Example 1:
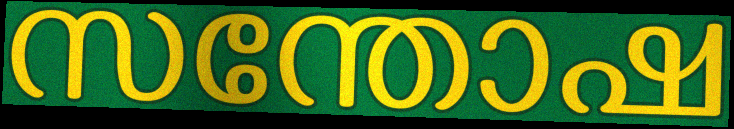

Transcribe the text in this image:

സന്തോഷ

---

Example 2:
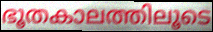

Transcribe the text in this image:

ഭൂതകാലത്തിലൂടെ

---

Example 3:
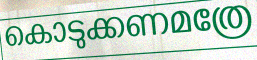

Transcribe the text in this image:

കൊടുക്കണമത്രേ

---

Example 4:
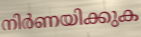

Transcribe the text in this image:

നിർണയിക്കുക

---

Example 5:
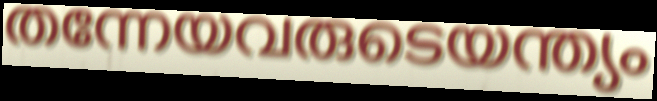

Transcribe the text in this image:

തന്നേയവരുടെയന്ത്യം